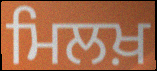
ਮਿਲਖ਼